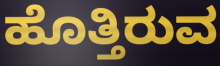
ಹೊತ್ತಿರುವ